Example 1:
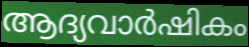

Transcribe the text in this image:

ആദ്യവാർഷികം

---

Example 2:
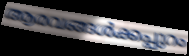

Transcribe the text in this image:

ആരവങ്ങൾക്കപ്പുറം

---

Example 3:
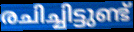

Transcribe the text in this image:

രചിച്ചിട്ടുണ്ട്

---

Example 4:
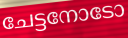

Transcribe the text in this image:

ചേട്ടനോടോ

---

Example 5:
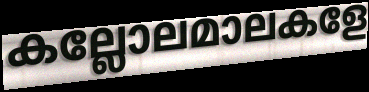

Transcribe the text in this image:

കല്ലോലമാലകളേ